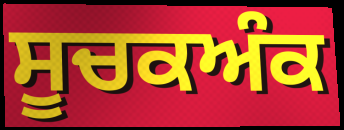
ਸੂਚਕਅੰਕ